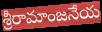
శ్రీరామాంజనేయ